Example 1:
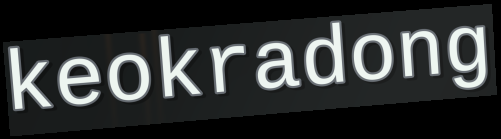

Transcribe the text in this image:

keokradong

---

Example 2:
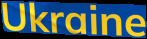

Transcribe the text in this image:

Ukraine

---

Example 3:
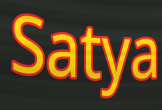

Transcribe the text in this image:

Satya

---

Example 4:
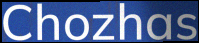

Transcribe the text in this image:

Chozhas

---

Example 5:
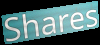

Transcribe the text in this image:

Shares